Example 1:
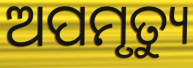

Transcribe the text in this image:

ଅପମୃତ୍ୟୁ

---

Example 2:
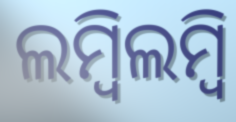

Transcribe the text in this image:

ଲମ୍ବିଲମ୍ବି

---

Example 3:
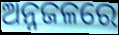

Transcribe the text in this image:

ଅନ୍ନଜଳରେ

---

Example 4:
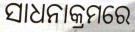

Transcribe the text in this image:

ସାଧନାକ୍ରମରେ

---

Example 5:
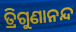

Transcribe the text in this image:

ତ୍ରିଗୁଣାନନ୍ଦ